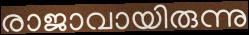
രാജാവായിരുന്നു